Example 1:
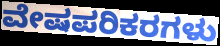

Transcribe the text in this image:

ವೇಷಪರಿಕರಗಳು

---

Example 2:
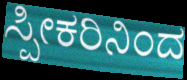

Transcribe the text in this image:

ಸ್ಪೀಕರಿನಿಂದ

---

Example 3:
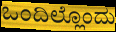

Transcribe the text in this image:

ಒಂದಿಲ್ಲೊಂದು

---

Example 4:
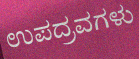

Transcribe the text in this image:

ಉಪದ್ರವಗಳು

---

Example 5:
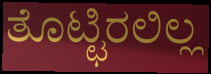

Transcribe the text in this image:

ತೊಟ್ಟಿರಲಿಲ್ಲ